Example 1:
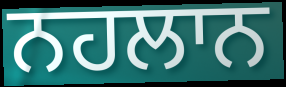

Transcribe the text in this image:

ਨਹਲਾਨ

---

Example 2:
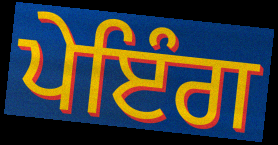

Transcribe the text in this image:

ਪੇਇੰਗ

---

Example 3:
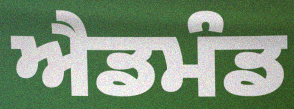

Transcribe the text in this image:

ਐਡਮੰਡ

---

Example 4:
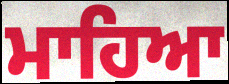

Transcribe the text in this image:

ਮਾਹਿਆ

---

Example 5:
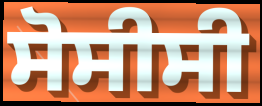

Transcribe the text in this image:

ਸੋਸੀਸੀ